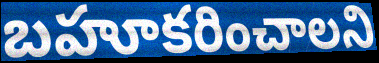
బహూకరించాలని